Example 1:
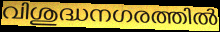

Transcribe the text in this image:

വിശുദ്ധനഗരത്തിൽ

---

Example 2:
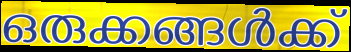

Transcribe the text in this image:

ഒരുക്കങ്ങൾക്ക്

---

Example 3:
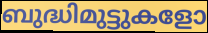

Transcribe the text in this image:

ബുദ്ധിമുട്ടുകളോ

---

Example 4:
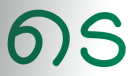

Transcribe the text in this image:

ടെ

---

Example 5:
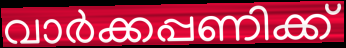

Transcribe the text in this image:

വാർക്കപ്പണിക്ക്